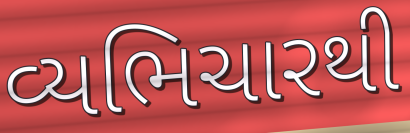
વ્યભિચારથી